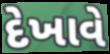
દેખાવે